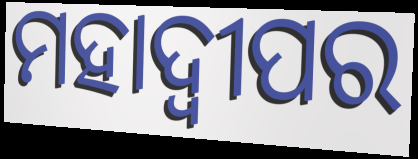
ମହାଦ୍ୱୀପର